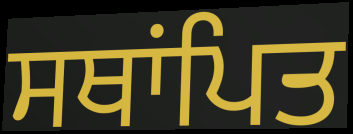
ਸਥਾਂਪਿਤ